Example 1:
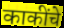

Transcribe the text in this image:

काकींचे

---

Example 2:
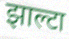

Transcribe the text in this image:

झाल्टा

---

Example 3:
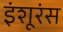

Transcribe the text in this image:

इंशूरंस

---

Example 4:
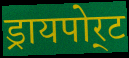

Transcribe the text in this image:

ड्रायपोर्ट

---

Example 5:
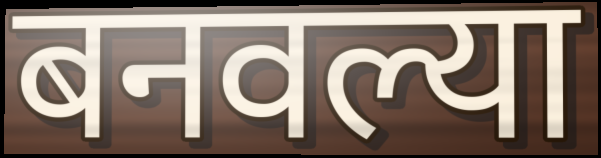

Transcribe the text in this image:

बनवल्या